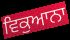
ਵਿਕੁਆਨਾ